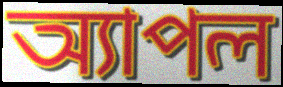
অ্যাপল